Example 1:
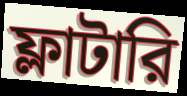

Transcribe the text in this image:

ফ্লাটারি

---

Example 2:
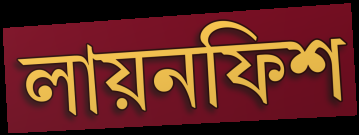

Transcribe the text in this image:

লায়নফিশ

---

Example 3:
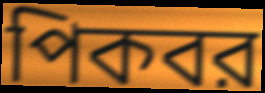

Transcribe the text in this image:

পিকবর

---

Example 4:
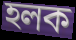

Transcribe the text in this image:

হলক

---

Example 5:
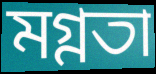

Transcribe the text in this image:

মগ্নতা